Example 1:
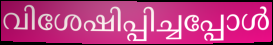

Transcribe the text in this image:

വിശേഷിപ്പിച്ചപ്പോൾ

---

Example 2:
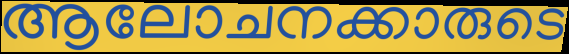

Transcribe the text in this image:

ആലോചനക്കാരുടെ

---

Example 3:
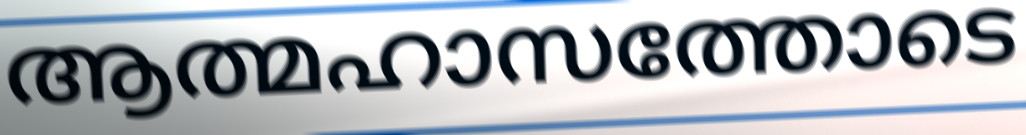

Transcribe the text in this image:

ആത്മഹാസത്തോടെ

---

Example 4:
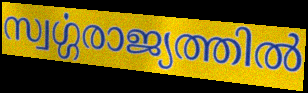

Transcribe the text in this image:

സ്വൎഗ്ഗരാജ്യത്തിൽ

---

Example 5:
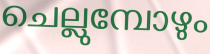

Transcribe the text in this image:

ചെല്ലുമ്പോഴും